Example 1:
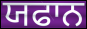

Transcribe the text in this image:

ਯਫਾਨ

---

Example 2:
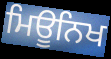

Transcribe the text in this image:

ਮਿਊਨਿਖ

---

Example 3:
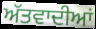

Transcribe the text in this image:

ਅੱਤਵਾਦੀਆਂ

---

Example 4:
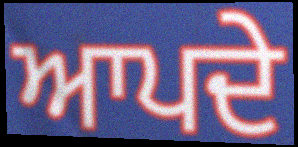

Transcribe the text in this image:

ਆਪਦੇ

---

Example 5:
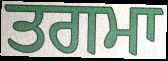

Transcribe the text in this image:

ਤਗਮਾ